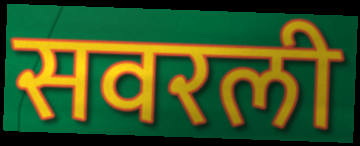
सवरली